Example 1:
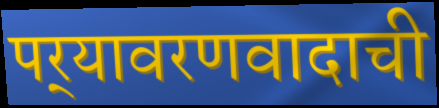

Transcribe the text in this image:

पर्यावरणवादाची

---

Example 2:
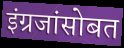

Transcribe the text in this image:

इंग्रजांसोबत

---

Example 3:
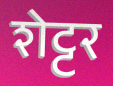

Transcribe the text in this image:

शेट्टर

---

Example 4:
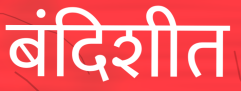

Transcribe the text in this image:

बंदिशीत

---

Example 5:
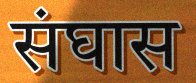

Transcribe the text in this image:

संघास